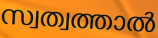
സ്വത്വത്താൽ